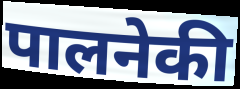
पालनेकी